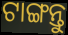
ଟାଙ୍ଗନ୍ତୁ